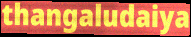
thangaludaiya